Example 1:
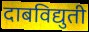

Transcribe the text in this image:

दाबविद्युती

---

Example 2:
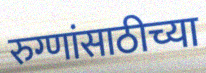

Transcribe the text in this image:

रुग्णांसाठीच्या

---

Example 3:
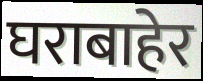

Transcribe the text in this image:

घराबाहेर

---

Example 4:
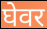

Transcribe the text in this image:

घेवर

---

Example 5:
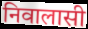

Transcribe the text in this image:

निवालासी